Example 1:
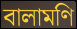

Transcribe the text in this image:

বালামণি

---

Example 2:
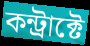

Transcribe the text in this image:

কন্ট্রাক্টে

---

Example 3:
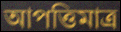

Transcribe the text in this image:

আপত্তিমাত্র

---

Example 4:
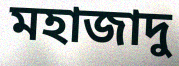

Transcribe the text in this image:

মহাজাদু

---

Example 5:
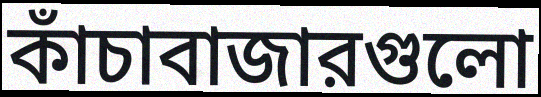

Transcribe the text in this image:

কাঁচাবাজারগুলো